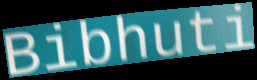
Bibhuti